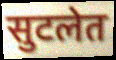
सुटलेत